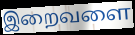
இறைவளை